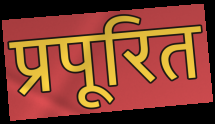
प्रपूरित